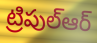
ట్రిపుల్ఆర్